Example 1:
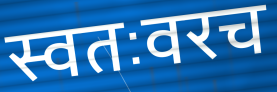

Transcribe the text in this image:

स्वतःवरच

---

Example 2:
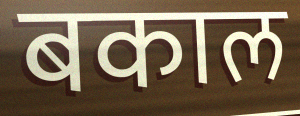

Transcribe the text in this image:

बकाल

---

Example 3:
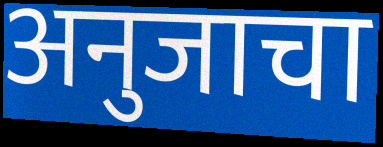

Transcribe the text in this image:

अनुजाचा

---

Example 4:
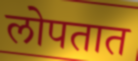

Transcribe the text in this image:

लोपतात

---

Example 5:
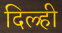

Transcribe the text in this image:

दिल्ही